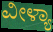
ವೀಳ್ಯಾ